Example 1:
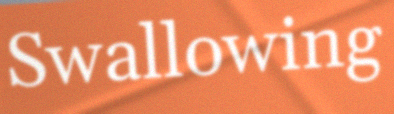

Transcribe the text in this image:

Swallowing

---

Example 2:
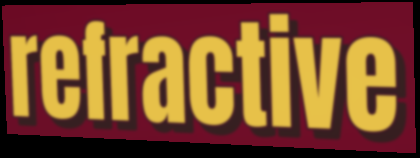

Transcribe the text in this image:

refractive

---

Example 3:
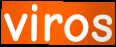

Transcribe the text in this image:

viros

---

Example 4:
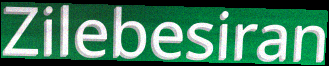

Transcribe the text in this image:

Zilebesiran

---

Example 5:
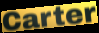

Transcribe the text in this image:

Carter